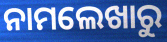
ନାମଲେଖାରୁ